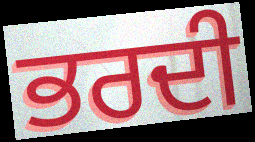
ਭਰਦੀ